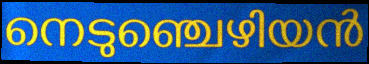
നെടുഞ്ചെഴിയൻ